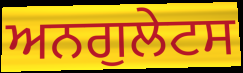
ਅਨਗੁਲੇਟਸ